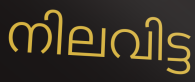
നിലവിട്ട